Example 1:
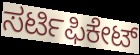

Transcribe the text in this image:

ಸರ್ಟಿಫಿಕೇಟ್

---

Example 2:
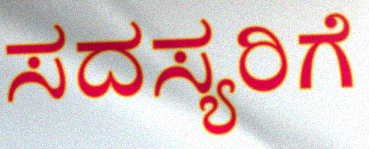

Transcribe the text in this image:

ಸದಸ್ಯರಿಗೆ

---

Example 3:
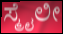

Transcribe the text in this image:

ಸ್ಮೈಲೀ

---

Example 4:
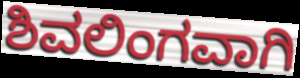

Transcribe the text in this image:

ಶಿವಲಿಂಗವಾಗಿ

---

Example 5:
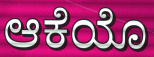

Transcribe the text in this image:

ಆಕೆಯೊ